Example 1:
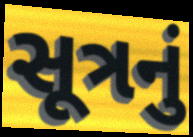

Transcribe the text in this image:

સૂત્રનું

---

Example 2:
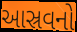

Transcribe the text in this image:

આસ્રવનો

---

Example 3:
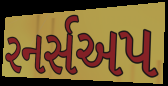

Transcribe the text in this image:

રનર્સઅપ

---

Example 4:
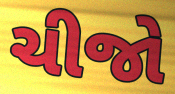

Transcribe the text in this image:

ચીજો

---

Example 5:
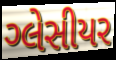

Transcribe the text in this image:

ગ્લેસીયર